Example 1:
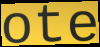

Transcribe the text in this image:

ote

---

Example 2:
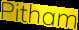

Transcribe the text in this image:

Pitham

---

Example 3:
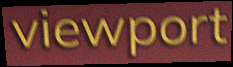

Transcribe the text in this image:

viewport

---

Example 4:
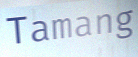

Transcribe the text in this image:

Tamang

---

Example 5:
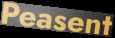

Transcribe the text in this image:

Peasent